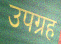
उपग्रह